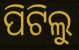
ପିଟିଲୁ